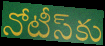
నోటీస్‌కు